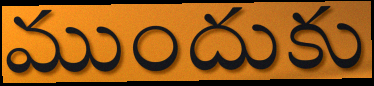
ముందుకు